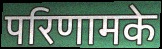
परिणामके